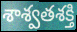
శాశ్వతశక్తి